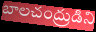
బాలచంద్రుడిని